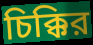
চিক্কির